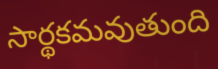
సార్థకమవుతుంది